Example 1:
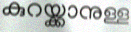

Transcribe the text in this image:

കുറയ്ക്കാനുള്ള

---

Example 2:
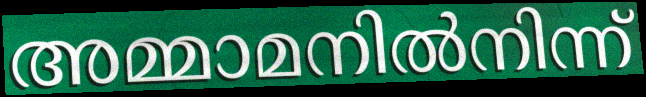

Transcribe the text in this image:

അമ്മാമനിൽനിന്ന്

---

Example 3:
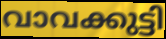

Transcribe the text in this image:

വാവക്കുട്ടി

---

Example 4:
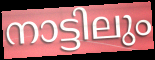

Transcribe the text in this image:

നാട്ടിലും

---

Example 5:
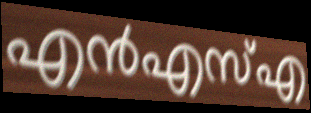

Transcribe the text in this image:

എൻഎസ്എ